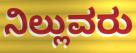
ನಿಲ್ಲುವರು